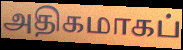
அதிகமாகப்